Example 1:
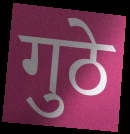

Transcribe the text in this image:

गुठे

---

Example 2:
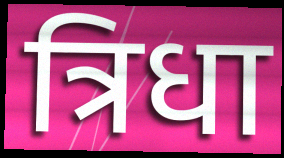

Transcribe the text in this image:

त्रिधा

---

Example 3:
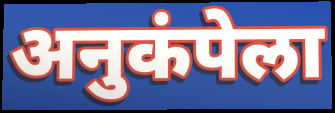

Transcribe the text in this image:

अनुकंपेला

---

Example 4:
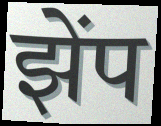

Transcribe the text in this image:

झेंप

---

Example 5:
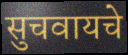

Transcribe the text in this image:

सुचवायचे